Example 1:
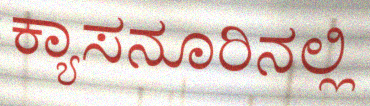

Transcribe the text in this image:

ಕ್ಯಾಸನೂರಿನಲ್ಲಿ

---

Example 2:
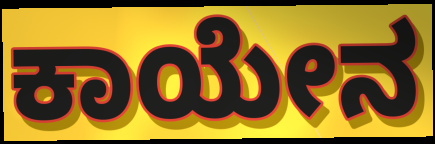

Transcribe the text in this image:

ಕಾಯೇನ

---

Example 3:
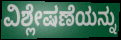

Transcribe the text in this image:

ವಿಶ್ಲೇಷಣೆಯನ್ನು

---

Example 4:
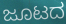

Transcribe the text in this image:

ಜೂಟದ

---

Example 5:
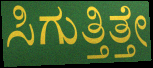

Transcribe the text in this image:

ಸಿಗುತ್ತಿತ್ತೇ